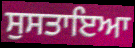
ਸੁਸਤਾਇਆ